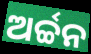
ଅର୍ଚ୍ଚନ